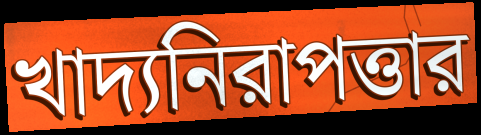
খাদ্যনিরাপত্তার